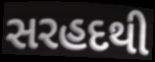
સરહદથી